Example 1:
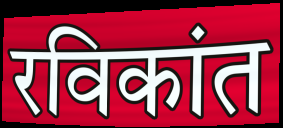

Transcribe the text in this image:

रविकांत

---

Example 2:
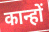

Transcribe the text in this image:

कान्हों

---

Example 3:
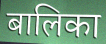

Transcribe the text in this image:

बालिका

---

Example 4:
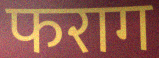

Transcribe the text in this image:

फराग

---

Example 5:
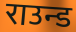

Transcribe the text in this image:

राउन्ड